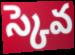
స్కెవ